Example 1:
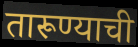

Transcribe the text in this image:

तारूण्याची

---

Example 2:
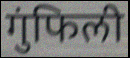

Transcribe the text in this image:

गुंफिली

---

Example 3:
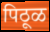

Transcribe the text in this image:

पिठूळ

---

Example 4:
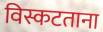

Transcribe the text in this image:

विस्कटताना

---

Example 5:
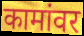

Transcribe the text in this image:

कामांवर